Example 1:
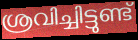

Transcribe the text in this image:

ശ്രവിച്ചിട്ടുണ്ട്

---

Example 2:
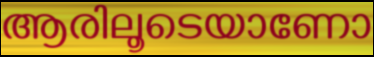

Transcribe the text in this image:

ആരിലൂടെയാണോ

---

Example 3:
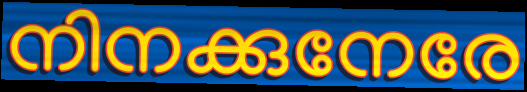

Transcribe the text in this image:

നിനക്കുനേരേ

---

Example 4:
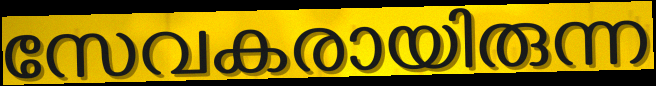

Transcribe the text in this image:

സേവകരായിരുന്ന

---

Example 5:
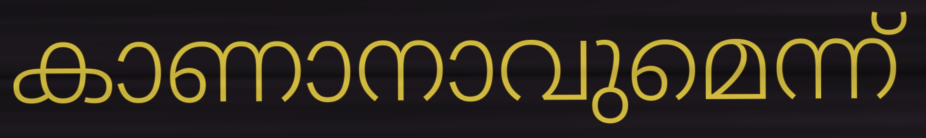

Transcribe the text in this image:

കാണാനാവുമെന്ന്